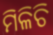
ମିଳିଚି